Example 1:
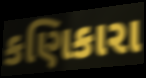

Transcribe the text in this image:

કણિકારા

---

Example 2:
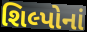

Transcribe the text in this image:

શિલ્પોનાં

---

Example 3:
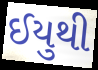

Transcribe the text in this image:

ઈયુથી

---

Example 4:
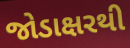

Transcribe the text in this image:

જોડાક્ષરથી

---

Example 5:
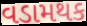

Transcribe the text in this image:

વડામથક